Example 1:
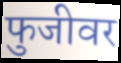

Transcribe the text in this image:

फुजीवर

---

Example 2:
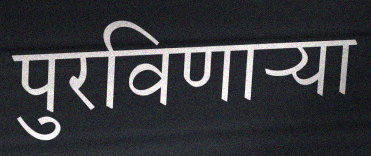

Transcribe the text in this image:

पुरविणाऱ्या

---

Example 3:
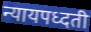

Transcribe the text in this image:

न्यायपध्दती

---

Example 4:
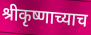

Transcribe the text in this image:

श्रीकृष्णाच्याच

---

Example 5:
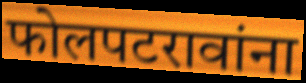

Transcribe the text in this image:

फोलपटरावांना